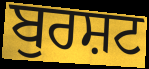
ਬੁਰਸ਼ਟ